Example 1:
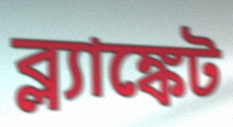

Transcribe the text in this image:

ব্ল্যাঙ্কেট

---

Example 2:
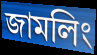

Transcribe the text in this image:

জামলিং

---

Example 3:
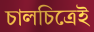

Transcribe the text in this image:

চালচিত্রেই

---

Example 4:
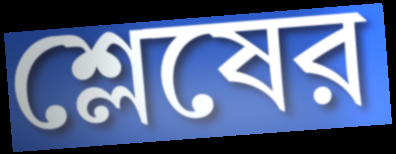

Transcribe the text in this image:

শ্লেষের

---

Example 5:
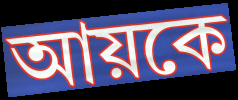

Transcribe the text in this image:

আয়কে